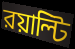
রয়াল্টি